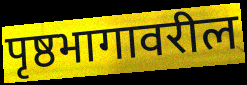
पृष्ठभागावरील